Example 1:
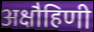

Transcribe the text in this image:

अक्षौहिणी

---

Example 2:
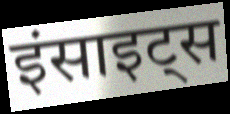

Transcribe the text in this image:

इंसाइट्स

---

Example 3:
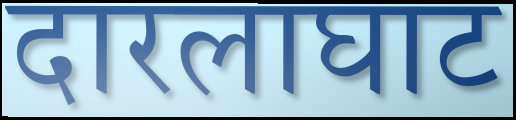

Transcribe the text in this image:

दारलाघाट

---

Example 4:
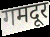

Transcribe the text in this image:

गमदूर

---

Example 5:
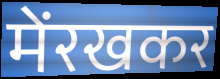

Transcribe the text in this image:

मेंरखकर